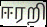
ஈரறி